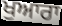
ਖੁਆਰਾ